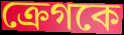
ক্রেগকে